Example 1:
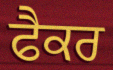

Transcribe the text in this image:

ਫੈਕਰ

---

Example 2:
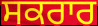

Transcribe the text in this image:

ਸਕਰਾਰ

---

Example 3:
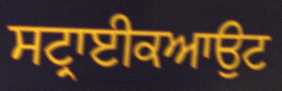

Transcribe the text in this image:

ਸਟ੍ਰਾਈਕਆਉਟ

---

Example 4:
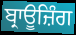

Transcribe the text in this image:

ਬ੍ਰਾਊਜ਼ਿੰਗ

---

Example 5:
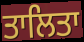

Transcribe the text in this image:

ਤਾਲਿਤਾ